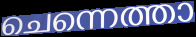
ചെന്നെത്താ